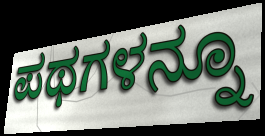
ಪಥಗಳನ್ನೂ